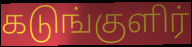
கடுங்குளிர்